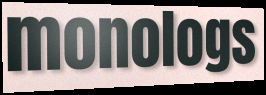
monologs